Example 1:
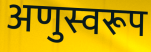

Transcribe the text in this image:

अणुस्वरूप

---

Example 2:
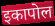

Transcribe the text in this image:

इकापोल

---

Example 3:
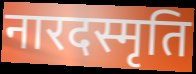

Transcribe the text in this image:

नारदस्मृति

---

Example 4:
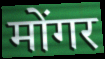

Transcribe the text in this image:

मोंगर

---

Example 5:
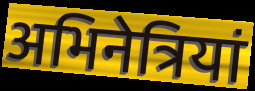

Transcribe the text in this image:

अभिनेत्रियां